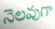
నెలవుగా